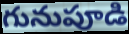
గునుపూడి